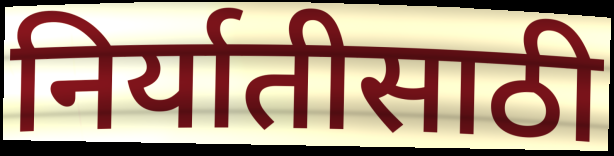
निर्यातीसाठी